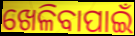
ଖେଳିବାପାଇଁ